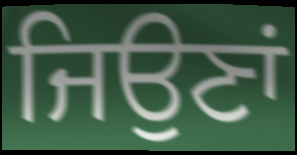
ਜਿਉਣਾਂ